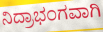
ನಿದ್ರಾಭಂಗವಾಗಿ